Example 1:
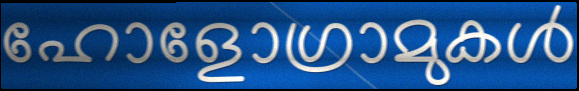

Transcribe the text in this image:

ഹോളോഗ്രാമുകൾ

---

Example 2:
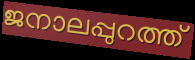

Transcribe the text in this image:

ജനാലപ്പുറത്ത്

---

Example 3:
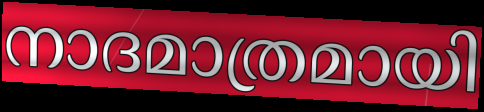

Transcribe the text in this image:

നാദമാത്രമായി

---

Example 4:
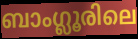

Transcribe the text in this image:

ബാംഗ്ലൂരിലെ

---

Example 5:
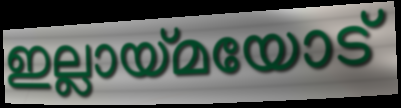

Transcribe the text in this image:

ഇല്ലായ്മയോട്